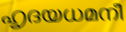
ഹൃദയധമനീ